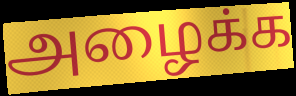
அழைக்க